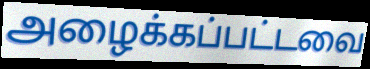
அழைக்கப்பட்டவை